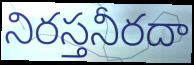
నిరస్తనీరదా